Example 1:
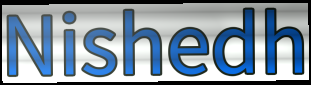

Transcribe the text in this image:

Nishedh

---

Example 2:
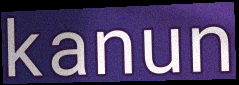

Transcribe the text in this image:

kanun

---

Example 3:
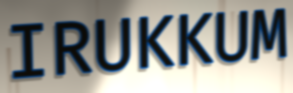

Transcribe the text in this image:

IRUKKUM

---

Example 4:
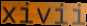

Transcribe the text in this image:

xivii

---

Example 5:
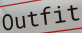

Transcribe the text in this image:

Outfit